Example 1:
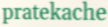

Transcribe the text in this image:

pratekache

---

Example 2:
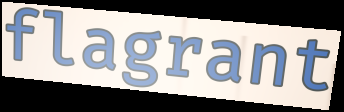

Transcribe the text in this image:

flagrant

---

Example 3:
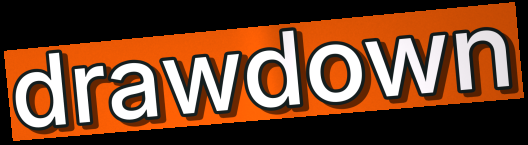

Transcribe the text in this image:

drawdown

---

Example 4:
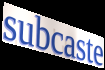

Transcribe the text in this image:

subcaste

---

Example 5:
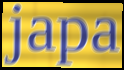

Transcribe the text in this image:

japa